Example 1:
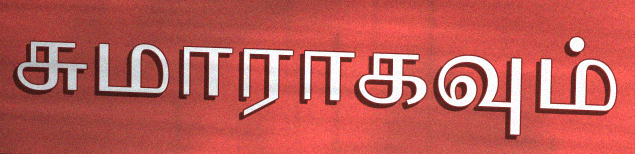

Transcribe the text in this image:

சுமாராகவும்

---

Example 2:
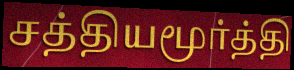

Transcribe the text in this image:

சத்தியமூர்த்தி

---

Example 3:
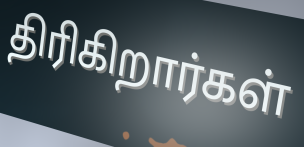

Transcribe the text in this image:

திரிகிறார்கள்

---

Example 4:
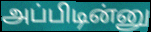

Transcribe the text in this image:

அப்பிடின்னு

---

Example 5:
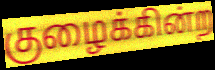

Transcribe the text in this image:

குழைக்கின்ற